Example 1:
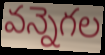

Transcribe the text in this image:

వన్నెగల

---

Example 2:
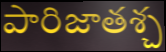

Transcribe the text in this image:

పారిజాతశ్చ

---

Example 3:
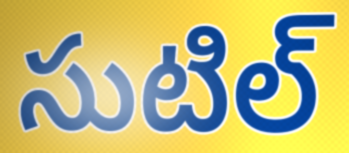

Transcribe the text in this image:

సుటిల్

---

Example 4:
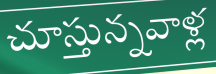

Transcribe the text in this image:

చూస్తున్నవాళ్ల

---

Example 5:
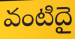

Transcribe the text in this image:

వంటిదై